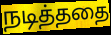
நடித்ததை